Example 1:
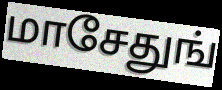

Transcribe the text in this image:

மாசேதுங்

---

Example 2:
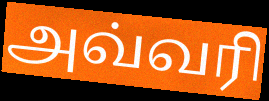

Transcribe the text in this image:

அவ்வரி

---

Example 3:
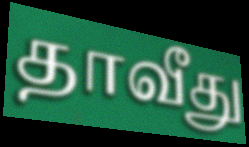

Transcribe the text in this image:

தாவீது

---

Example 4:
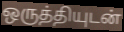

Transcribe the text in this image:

ஒருத்தியுடன்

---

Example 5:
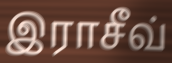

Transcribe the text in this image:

இராசீவ்